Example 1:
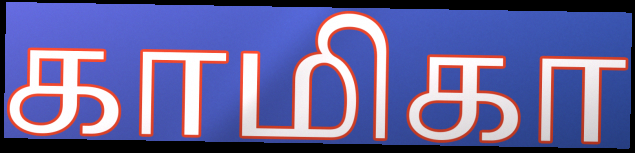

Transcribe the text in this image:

காமிகா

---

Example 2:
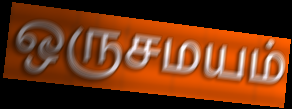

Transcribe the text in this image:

ஒருசமயம்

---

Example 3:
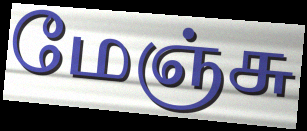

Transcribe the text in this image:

மேஞ்சு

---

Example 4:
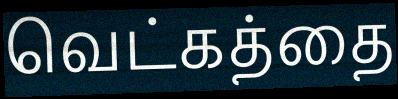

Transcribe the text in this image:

வெட்கத்தை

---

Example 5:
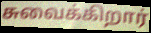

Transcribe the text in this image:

சுவைக்கிறார்